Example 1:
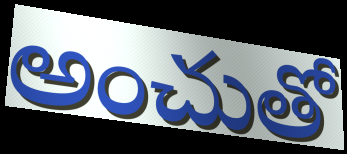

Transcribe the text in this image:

అంచుతో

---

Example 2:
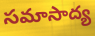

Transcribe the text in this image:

సమాసాద్య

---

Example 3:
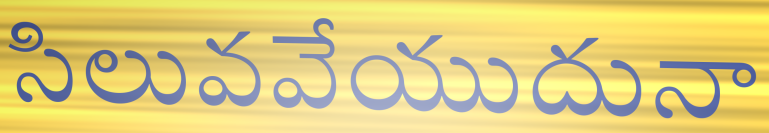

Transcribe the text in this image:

సిలువవేయుదునా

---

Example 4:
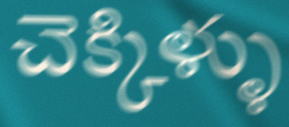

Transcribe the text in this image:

చెక్కిళ్ళు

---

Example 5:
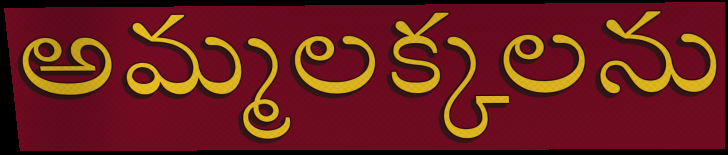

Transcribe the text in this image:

అమ్మలక్కలను